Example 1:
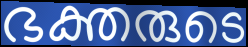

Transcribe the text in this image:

ഭക്തരുടെ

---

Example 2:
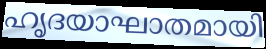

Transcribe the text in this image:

ഹൃദയാഘാതമായി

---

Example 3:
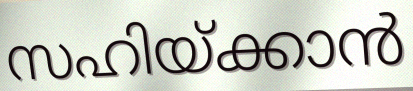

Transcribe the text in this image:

സഹിയ്ക്കാൻ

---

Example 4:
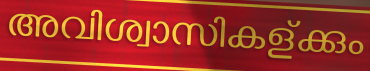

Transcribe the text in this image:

അവിശ്വാസികള്ക്കും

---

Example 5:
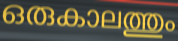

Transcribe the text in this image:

ഒരുകാലത്തും